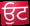
ਓੁਟ